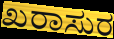
ಖರಾಸುರ